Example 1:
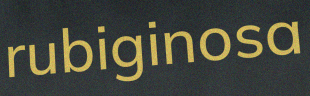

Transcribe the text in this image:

rubiginosa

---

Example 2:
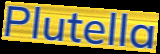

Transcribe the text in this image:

Plutella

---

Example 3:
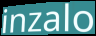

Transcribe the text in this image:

inzalo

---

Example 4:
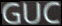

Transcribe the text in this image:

GUC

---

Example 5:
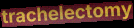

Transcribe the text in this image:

trachelectomy